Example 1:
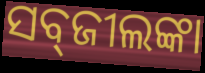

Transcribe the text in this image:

ସବ୍‌ଜୀଲଙ୍କା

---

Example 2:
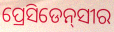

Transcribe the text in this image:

ପ୍ରେସିଡେନ୍‌ସୀର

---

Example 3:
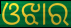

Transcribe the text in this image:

ଓଝାର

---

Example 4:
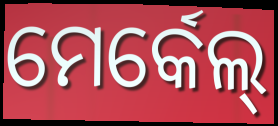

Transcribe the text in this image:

ମେର୍କେଲ୍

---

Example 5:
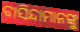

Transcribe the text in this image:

ବାସିନ୍ଦାମାନଙ୍କୁ